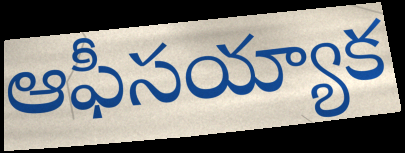
ఆఫీసయ్యాక